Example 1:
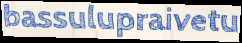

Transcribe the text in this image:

bassulupraivetu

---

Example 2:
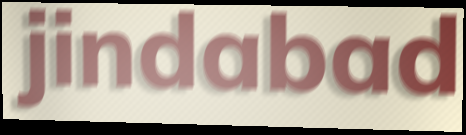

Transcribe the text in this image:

jindabad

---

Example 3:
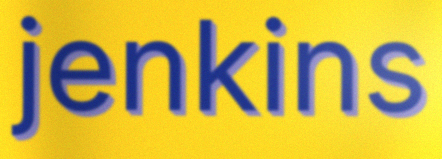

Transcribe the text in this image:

jenkins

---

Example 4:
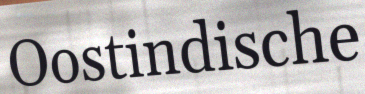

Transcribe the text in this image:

Oostindische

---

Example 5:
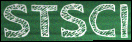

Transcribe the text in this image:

STSCI